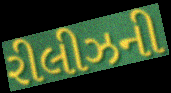
રીલીઝની